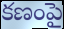
కణంపై